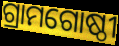
ଗ୍ରାମଗୋଷ୍ଠୀ